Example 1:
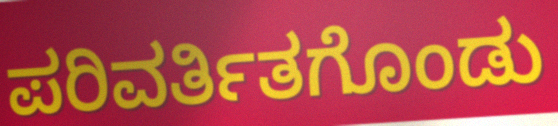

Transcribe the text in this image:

ಪರಿವರ್ತಿತಗೊಂಡು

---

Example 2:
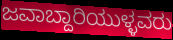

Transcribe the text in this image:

ಜವಾಬ್ದಾರಿಯುಳ್ಳವರು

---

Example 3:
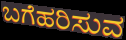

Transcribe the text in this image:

ಬಗೆಹರಿಸುವ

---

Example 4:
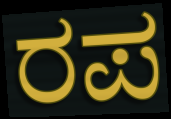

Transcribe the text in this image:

ರಪ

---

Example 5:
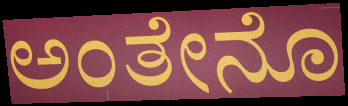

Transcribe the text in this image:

ಅಂತೇನೊ